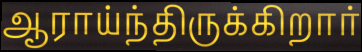
ஆராய்ந்திருக்கிறார்